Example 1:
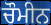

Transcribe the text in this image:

ਚੌਮੀਨ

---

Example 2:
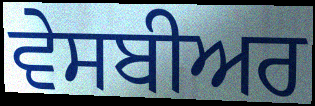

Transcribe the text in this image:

ਵੇਸਬੀਅਰ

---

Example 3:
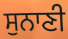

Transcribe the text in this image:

ਸੁਨਾਣੀ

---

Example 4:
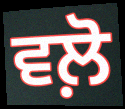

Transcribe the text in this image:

ਵਲ਼ੋ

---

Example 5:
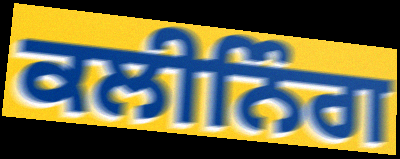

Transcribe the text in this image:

ਕਲੀਨਿੰਗ